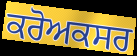
ਕਰੋਅਕਸਰ